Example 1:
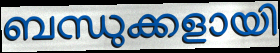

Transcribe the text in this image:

ബന്ധുക്കളായി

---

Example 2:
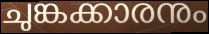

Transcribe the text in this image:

ചുങ്കക്കാരനും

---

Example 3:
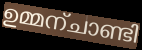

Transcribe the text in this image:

ഉമ്മന്ചാണ്ടി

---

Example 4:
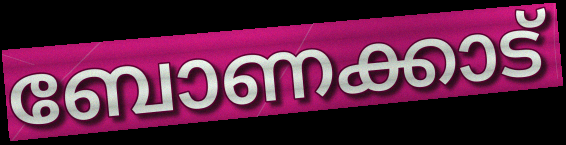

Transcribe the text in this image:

ബോണക്കാട്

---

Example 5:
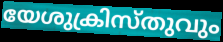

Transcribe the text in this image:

യേശുക്രിസ്തുവും